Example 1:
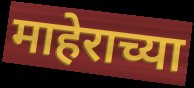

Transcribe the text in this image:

माहेराच्या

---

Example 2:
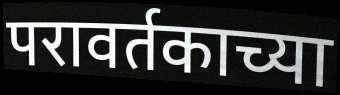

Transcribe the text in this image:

परावर्तकाच्या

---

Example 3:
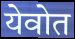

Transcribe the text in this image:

येवोत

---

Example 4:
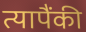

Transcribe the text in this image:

त्यापैंकी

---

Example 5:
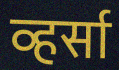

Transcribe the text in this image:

व्हर्सा